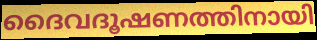
ദൈവദൂഷണത്തിനായി